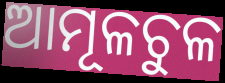
ଆମୂଳଚୁଳ